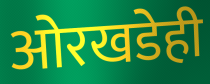
ओरखडेही